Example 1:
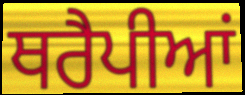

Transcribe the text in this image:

ਥਰੈਪੀਆਂ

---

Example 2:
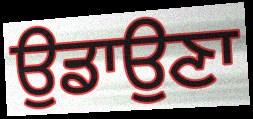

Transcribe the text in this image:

ਉਡਾਉਣਾ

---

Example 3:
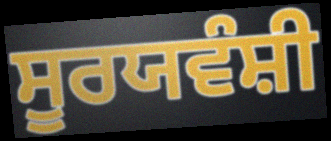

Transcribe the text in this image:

ਸੂਰਯਵੰਸ਼ੀ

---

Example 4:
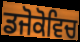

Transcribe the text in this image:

ਡਜੋਕੋਵਿਚ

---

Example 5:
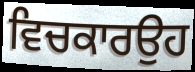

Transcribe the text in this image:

ਵਿਚਕਾਰਉਹ